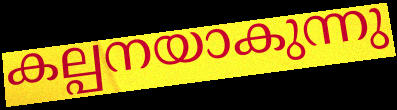
കല്പനയാകുന്നു